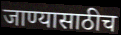
जाण्यासाठीच